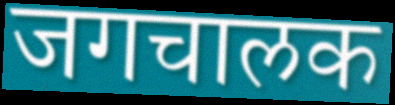
जगचालक